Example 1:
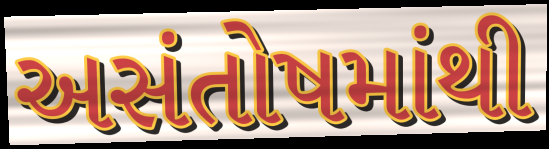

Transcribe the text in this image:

અસંતોષમાંથી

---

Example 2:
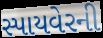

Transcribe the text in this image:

સ્પાયવેરની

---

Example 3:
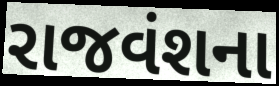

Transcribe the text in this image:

રાજવંશના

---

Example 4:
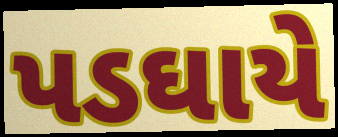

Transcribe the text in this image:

પડઘાયે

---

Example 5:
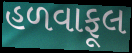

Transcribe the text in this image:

હળવાફૂલ